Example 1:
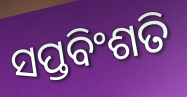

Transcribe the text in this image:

ସପ୍ତବିଂଶତି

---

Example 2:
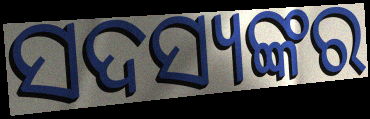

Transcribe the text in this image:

ସଦସ୍ୟଙ୍କର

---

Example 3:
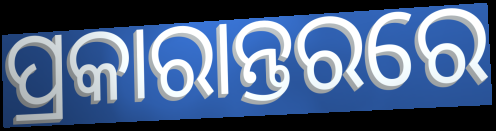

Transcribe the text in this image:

ପ୍ରକାରାନ୍ତରରେ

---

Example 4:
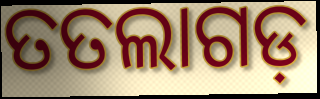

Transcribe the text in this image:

ତତଲାଗଡ଼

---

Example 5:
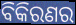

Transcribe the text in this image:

ବିକିରଣର